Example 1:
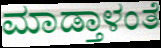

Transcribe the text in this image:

ಮಾಡ್ತಾಳಂತೆ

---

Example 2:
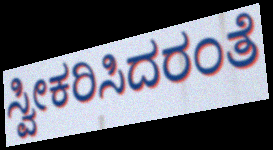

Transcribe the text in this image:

ಸ್ವೀಕರಿಸಿದರಂತೆ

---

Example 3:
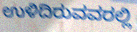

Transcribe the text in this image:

ಉಳಿದಿರುವವರಲ್ಲಿ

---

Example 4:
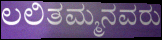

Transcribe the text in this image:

ಲಲಿತಮ್ಮನವರು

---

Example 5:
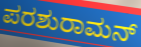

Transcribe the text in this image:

ಪರಶುರಾಮನ್